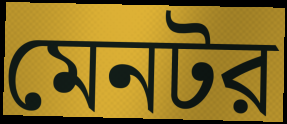
মেনটর